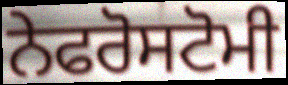
ਨੇਫਰੋਸਟੋਮੀ